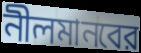
নীলমানবের